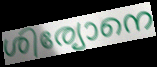
ശിര്യോനെ